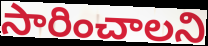
సారించాలని